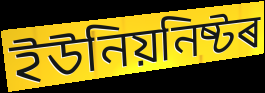
ইউনিয়নিষ্টৰ